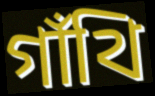
গাঁথি